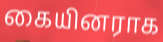
கையினராக